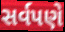
સર્વપણે